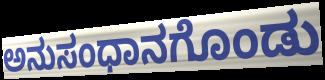
ಅನುಸಂಧಾನಗೊಂಡು